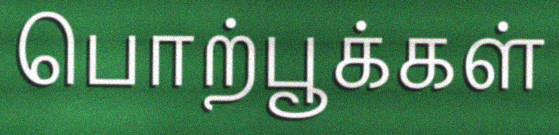
பொற்பூக்கள்